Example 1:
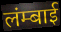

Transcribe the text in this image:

लंम्बाई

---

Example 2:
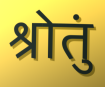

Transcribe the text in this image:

श्रोतुं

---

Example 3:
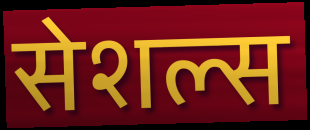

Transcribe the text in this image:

सेशल्स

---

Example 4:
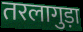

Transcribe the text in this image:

तरलागुड़ा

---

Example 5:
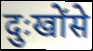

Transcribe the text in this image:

दुःखोंसे